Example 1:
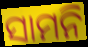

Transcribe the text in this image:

ସାମନି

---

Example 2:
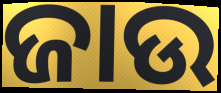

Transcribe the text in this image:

ଜାଉ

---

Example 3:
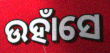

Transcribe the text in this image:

ଉହାଁସେ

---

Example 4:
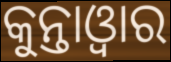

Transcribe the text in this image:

କୁନ୍ତାଓ୍ୱାର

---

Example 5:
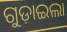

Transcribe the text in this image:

ଗୁଡ଼ାଇଲା